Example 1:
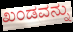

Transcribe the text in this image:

ಖಂಡವನ್ನು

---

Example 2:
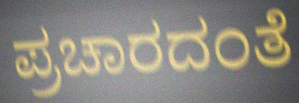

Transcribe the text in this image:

ಪ್ರಚಾರದಂತೆ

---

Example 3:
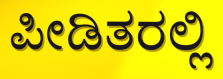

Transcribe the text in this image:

ಪೀಡಿತರಲ್ಲಿ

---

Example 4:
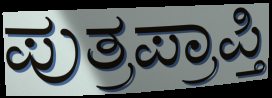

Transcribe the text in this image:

ಪುತ್ರಪ್ರಾಪ್ತಿ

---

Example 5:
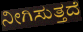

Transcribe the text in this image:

ನೀಗಿಸುತ್ತದೆ